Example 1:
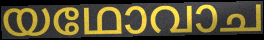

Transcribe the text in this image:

യഥോവാച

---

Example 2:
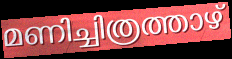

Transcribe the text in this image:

മണിച്ചിത്രത്താഴ്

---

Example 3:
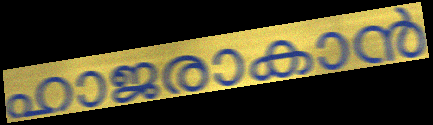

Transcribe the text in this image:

ഹാജരാകാൻ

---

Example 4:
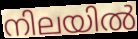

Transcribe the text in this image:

നിലയിൽ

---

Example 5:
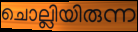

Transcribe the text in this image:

ചൊല്ലിയിരുന്ന